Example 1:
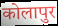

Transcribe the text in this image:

कोलापुर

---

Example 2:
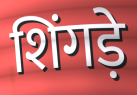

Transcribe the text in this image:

शिंगड़े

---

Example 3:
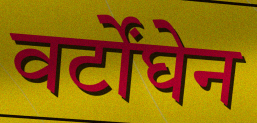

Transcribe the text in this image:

वर्टोंघेन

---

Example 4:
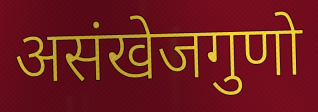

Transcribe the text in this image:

असंखेजगुणो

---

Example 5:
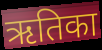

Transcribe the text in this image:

ऋतिका